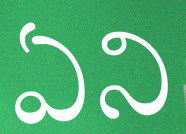
ఏని